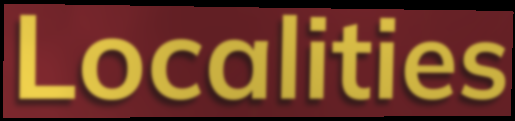
Localities